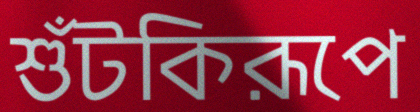
শুঁটকিরূপে